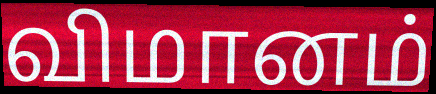
விமானம்